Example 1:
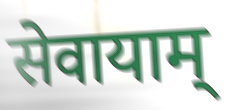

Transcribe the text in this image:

सेवायाम्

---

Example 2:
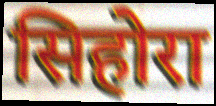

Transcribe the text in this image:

सिहोरा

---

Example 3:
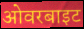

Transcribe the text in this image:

ओवरबाइट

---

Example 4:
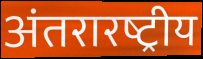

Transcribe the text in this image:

अंतरारष्ट्रीय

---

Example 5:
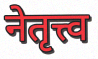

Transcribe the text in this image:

नेतृत्त्व